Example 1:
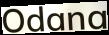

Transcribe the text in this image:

Odana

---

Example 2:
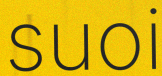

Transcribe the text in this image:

suoi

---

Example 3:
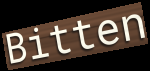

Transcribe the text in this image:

Bitten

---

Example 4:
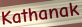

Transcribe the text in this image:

Kathanak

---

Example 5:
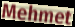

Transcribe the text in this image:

Mehmet